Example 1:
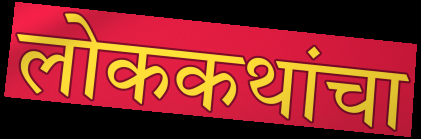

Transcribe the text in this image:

लोककथांचा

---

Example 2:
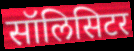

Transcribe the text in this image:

सॉलिसिटर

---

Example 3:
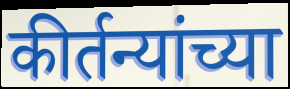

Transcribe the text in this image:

कीर्तन्यांच्या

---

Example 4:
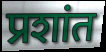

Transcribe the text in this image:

प्रशांत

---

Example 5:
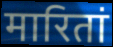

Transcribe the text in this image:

मारितां